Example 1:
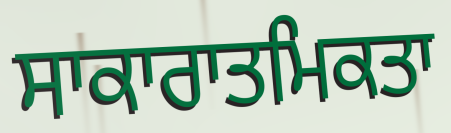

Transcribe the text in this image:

ਸਾਕਾਰਾਤਮਿਕਤਾ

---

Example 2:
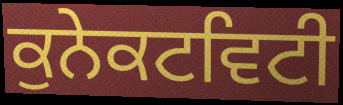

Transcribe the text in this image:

ਕੁਨੇਕਟਵਿਟੀ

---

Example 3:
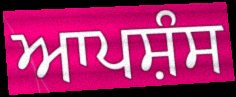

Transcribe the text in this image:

ਆਪਸ਼ੰਸ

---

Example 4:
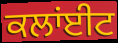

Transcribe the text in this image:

ਕਲਾਂਈਟ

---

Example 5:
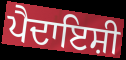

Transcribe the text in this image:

ਪੈਦਾਇਸ਼ੀ